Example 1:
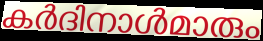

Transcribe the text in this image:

കർദിനാൾമാരും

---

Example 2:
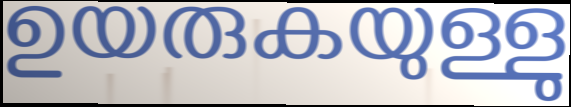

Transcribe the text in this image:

ഉയരുകയുള്ളു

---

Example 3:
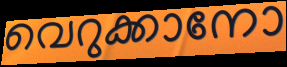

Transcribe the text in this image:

വെറുക്കാനോ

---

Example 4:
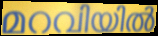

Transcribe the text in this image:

മറവിയിൽ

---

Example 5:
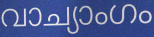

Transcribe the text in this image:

വാച്യാംഗം